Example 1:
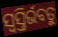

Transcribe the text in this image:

ସ୍ୱସ୍ତିର୍ଭବତୁ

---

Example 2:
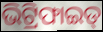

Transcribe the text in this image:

ଭିଟ୍ରିଫାଇଡ୍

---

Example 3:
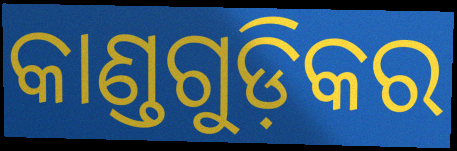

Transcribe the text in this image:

କାଣ୍ଡଗୁଡ଼ିକର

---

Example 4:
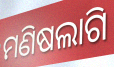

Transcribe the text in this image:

ମଣିଷଲାଗି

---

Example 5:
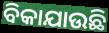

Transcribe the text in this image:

ବିକାଯାଉଛି